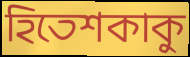
হিতেশকাকু